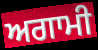
ਅਗਾਮੀ